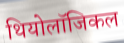
थियोलॉजिकल